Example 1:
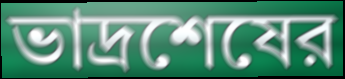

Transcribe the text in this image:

ভাদ্রশেষের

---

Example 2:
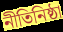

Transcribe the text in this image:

নীতিনিষ্ঠা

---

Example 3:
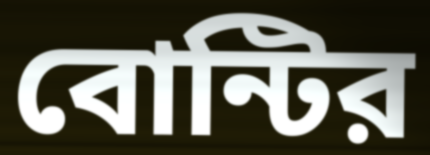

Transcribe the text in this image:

বোন্টির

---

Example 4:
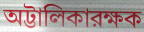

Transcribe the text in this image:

অট্টালিকারক্ষক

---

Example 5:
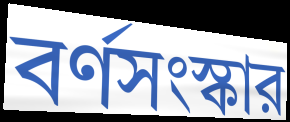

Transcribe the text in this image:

বর্ণসংস্কার